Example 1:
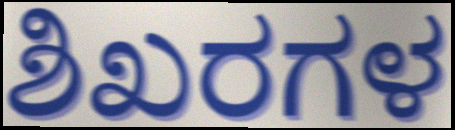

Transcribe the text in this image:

ಶಿಖರಗಳ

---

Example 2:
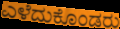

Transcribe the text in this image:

ಎಳೆದುಕೊಂಡರು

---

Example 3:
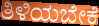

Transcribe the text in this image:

ತಿಳಿಯಬೇಕೆ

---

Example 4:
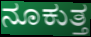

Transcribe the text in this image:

ನೂಕುತ್ತ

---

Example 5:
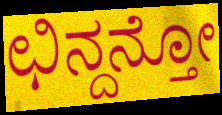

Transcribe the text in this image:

ಛಿನ್ದನ್ತೋ